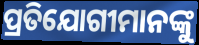
ପ୍ରତିଯୋଗୀମାନଙ୍କୁ